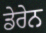
ਡੇਰੇਨ